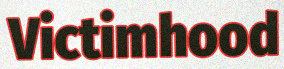
Victimhood